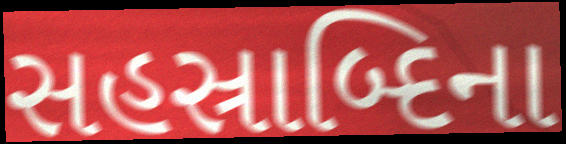
સહસ્રાબ્દિના